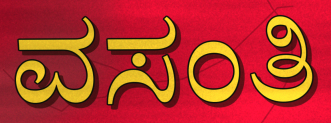
ವಸಂತಿ